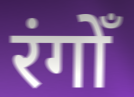
रंगोँ